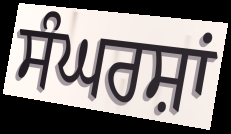
ਸੰਘਰਸ਼ਾਂ